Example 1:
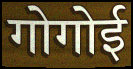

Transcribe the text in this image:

गोगोई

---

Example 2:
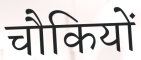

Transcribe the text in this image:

चौकियों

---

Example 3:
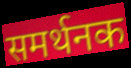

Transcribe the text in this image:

समर्थनक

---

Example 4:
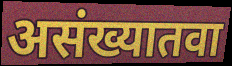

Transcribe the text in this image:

असंख्यातवा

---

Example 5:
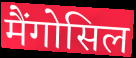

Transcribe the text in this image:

मैंगोसिल